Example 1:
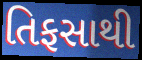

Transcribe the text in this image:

તિફસાથી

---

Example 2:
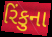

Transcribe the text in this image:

રિંકુના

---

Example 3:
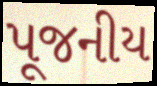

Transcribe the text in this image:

પૂજનીય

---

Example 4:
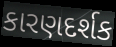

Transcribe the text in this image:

કારણદર્શક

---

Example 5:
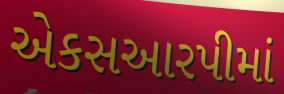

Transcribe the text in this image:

એકસઆરપીમાં